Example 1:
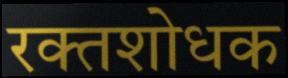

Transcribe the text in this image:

रक्तशोधक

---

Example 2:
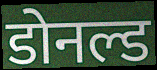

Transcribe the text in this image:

डोनल्‍ड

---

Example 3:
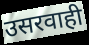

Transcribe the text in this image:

उसरवाही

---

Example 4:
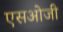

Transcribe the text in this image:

एसओजी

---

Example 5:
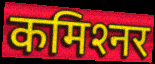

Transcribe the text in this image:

कमिश्नर